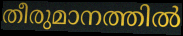
തീരുമാനത്തിൽ